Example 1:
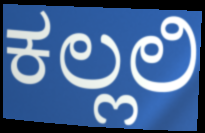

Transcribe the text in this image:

ಕಲ್ಲಲಿ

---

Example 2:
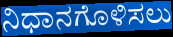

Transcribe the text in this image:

ನಿಧಾನಗೊಳಿಸಲು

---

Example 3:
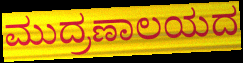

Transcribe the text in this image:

ಮುದ್ರಣಾಲಯದ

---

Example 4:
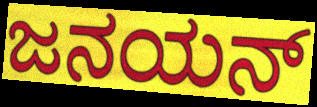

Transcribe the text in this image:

ಜನಯನ್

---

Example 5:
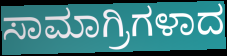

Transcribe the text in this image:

ಸಾಮಾಗ್ರಿಗಳಾದ